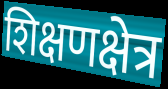
शिक्षणक्षेत्र